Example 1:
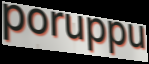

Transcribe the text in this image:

poruppu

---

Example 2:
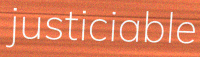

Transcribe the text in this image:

justiciable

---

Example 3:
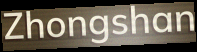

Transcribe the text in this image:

Zhongshan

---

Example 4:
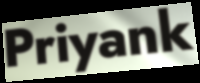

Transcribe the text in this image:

Priyank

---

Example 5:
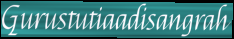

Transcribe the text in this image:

Gurustutiaadisangrah